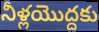
నీళ్లయొద్దకు